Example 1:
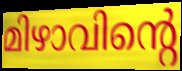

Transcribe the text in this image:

മിഴാവിന്റെ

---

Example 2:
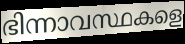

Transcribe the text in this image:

ഭിന്നാവസ്ഥകളെ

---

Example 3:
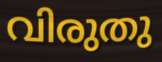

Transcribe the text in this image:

വിരുതു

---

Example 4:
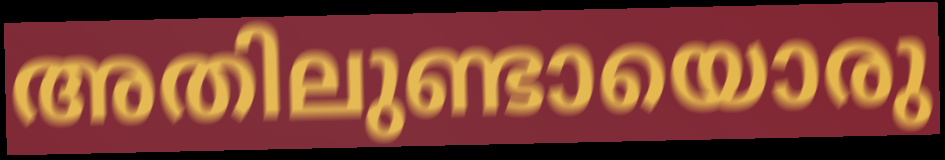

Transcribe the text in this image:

അതിലുണ്ടായൊരു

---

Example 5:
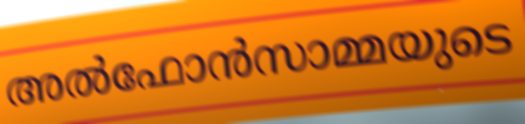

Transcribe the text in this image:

അൽഫോൻസാമ്മയുടെ